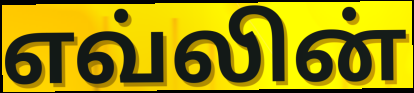
எவ்லின்